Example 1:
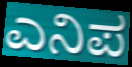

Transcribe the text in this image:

ಎನಿಪ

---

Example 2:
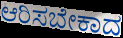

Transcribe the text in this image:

ಆರಿಸಬೇಕಾದ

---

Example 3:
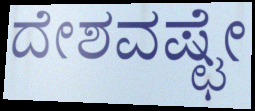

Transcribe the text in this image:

ದೇಶವಷ್ಟೇ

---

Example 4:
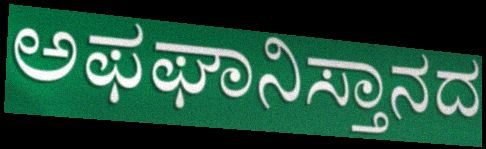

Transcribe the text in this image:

ಅಫಘಾನಿಸ್ತಾನದ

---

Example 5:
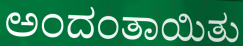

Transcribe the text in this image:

ಅಂದಂತಾಯಿತು